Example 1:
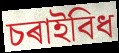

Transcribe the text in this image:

চৰাইবিধ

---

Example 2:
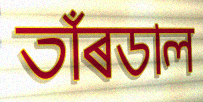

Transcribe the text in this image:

তাঁৰডাল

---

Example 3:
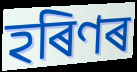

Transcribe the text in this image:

হৰিণৰ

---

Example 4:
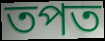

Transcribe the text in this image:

তপত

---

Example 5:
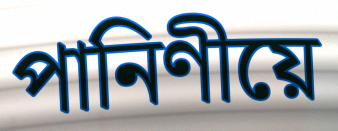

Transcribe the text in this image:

পানিণীয়ে